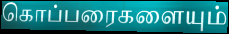
கொப்பரைகளையும்